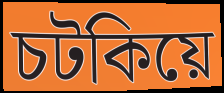
চটকিয়ে